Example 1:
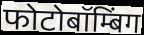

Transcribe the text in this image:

फोटोबॉम्बिंग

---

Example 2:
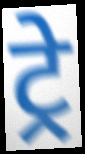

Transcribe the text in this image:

ट्रे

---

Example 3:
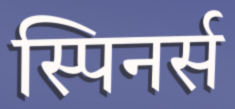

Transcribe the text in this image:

स्पिनर्स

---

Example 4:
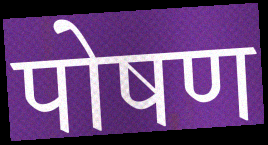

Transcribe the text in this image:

पोषण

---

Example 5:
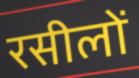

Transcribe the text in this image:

रसीलों